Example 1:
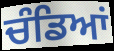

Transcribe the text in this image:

ਚੰਡਿਆਂ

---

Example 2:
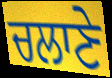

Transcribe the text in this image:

ਚਲਾਣੇ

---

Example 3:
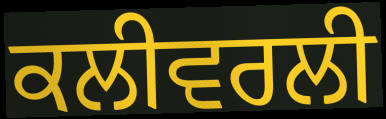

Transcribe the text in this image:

ਕਲੀਵਰਲੀ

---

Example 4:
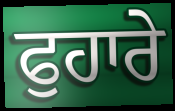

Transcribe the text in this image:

ਫੁਹਾਰੇ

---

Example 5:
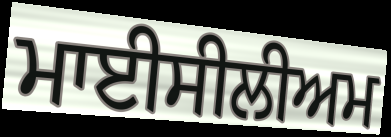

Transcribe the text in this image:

ਮਾਈਸੀਲੀਅਮ